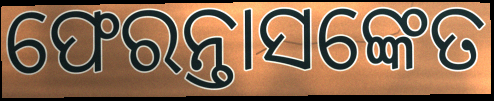
ଫେରନ୍ତାସଙ୍କେତ